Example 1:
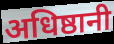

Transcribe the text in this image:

अधिष्ठानी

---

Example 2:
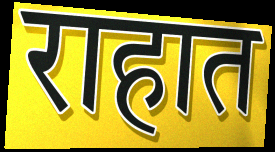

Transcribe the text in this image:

राहात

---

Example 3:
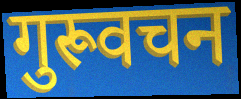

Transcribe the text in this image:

गुरूवचन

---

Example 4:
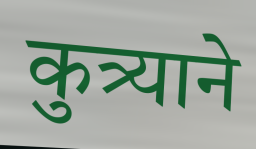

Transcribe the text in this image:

कुत्र्याने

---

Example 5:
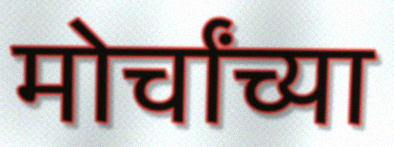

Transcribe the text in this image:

मोर्चांच्या